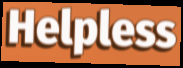
Helpless